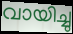
വായിച്ചു